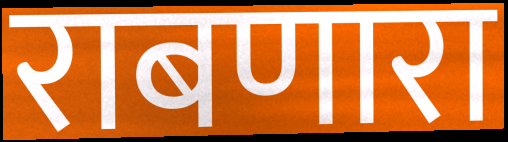
राबणारा